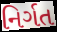
નિર્ગત